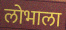
लोभाला